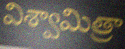
విశ్వామిత్రా